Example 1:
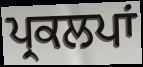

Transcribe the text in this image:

ਪ੍ਰਕਲਪਾਂ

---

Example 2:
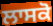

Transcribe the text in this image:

ਲਾਸਕੋ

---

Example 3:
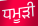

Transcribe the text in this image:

ਧਮੂੜੀ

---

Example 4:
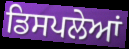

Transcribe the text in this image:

ਡਿਸਪਲੇਆਂ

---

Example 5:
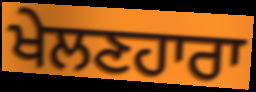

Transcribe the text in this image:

ਖੇਲਣਹਾਰਾ